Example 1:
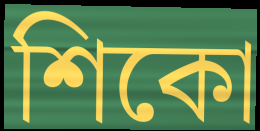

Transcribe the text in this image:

শিকো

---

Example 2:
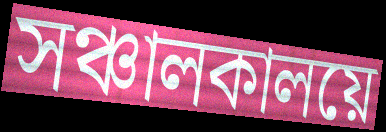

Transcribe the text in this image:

সঞ্চালকালয়ে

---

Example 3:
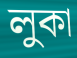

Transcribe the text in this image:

লুকা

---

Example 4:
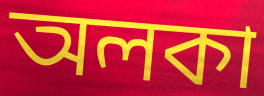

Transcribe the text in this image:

অলকা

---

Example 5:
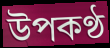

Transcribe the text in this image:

উপকণ্ঠ